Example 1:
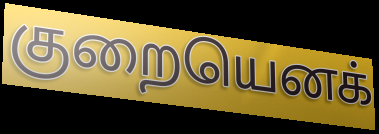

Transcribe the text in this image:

குறையெனக்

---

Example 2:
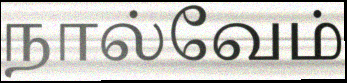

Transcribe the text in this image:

நால்வேம்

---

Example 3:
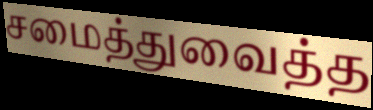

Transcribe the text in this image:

சமைத்துவைத்த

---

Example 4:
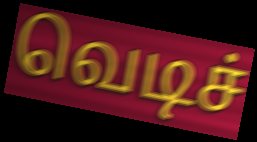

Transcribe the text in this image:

வெடிச்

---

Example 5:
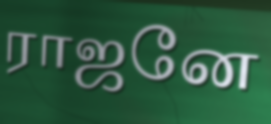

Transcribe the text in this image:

ராஜனே